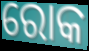
ରୋକ